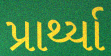
પ્રાર્થ્યા